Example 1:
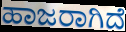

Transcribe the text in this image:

ಹಾಜರಾಗಿದೆ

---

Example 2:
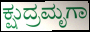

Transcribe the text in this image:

ಕ್ಷುದ್ರಮೃಗಾ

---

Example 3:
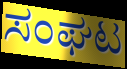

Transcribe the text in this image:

ಸಂಘಟ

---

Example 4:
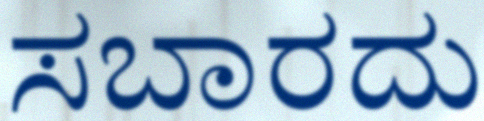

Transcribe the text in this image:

ಸಬಾರದು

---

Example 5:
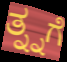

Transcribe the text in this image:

ತ್ನ್ನಗೆ